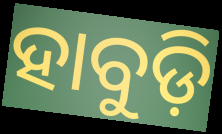
ହାବୁଡ଼ି